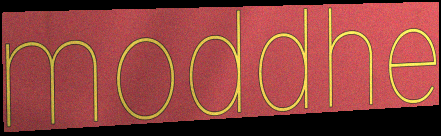
moddhe